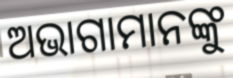
ଅଭାଗାମାନଙ୍କୁ